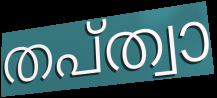
തപ്ത്വാ